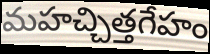
మహచ్చిత్తగేహం